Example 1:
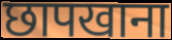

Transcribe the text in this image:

छापखाना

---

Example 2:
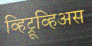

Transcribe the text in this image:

व्हिट्रूव्हिअस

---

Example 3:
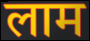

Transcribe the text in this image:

लाम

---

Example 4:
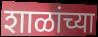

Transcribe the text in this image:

शाळांच्या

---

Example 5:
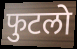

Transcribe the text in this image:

फुटलो